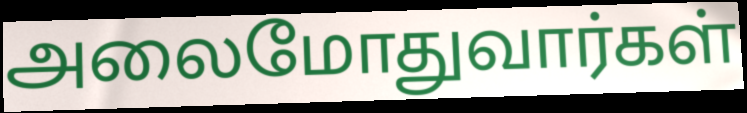
அலைமோதுவார்கள்